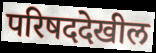
परिषददेखील